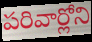
పరివార్లోని